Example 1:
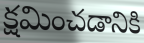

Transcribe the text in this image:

క్షమించడానికి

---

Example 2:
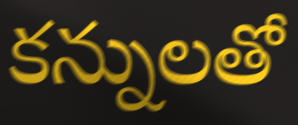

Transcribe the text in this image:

కన్నులతో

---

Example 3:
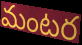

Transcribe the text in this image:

మంటర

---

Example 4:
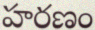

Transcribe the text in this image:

హరణం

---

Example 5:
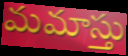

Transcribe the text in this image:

మమాస్తు